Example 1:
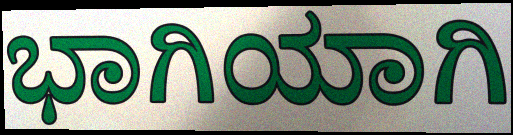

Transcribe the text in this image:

ಭಾಗಿಯಾಗಿ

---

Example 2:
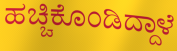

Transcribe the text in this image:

ಹಚ್ಚಿಕೊಂಡಿದ್ದಾಳೆ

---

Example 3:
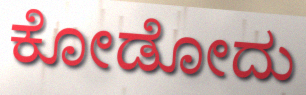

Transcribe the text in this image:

ಕೋಡೋದು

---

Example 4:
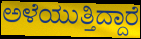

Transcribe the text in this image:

ಅಳೆಯುತ್ತಿದ್ದಾರೆ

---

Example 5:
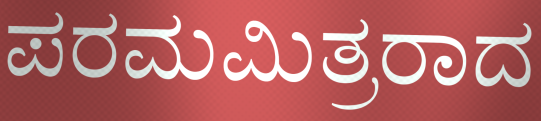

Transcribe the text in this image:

ಪರಮಮಿತ್ರರಾದ